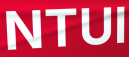
NTUI